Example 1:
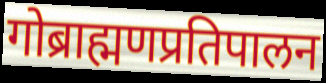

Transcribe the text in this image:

गोब्राह्मणप्रतिपालन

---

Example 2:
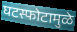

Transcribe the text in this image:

घटस्फोटामुळे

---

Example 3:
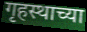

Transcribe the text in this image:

गृहस्थाच्या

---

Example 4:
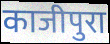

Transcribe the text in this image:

काजीपुरा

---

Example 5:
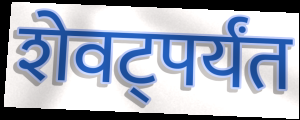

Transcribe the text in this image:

शेवट्पर्यंत